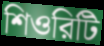
শিওরিটি